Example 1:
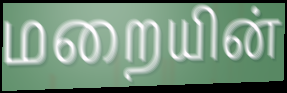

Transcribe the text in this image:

மறையின்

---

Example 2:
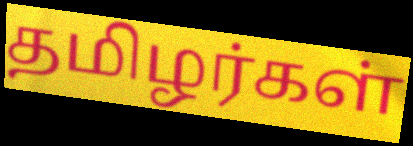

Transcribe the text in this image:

தமிழர்கள்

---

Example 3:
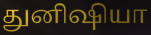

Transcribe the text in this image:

துனிஷியா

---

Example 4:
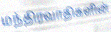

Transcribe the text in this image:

மந்திரவாதிகளின்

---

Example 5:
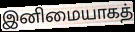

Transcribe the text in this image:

இனிமையாகத்